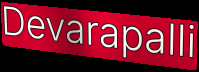
Devarapalli